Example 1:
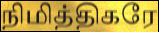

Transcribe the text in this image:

நிமித்திகரே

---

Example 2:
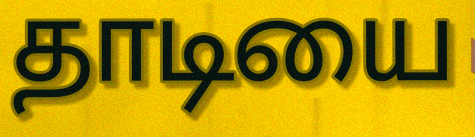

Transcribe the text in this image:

தாடியை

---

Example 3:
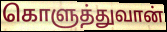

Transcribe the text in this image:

கொளுத்துவான்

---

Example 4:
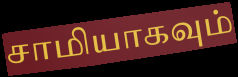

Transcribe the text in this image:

சாமியாகவும்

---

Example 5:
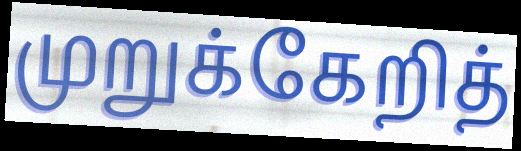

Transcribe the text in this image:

முறுக்கேறித்